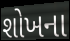
શોખના